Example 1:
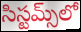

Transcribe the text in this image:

సిస్టమ్స్‌లో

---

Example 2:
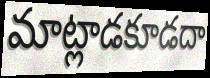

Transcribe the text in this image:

మాట్లాడకూడదా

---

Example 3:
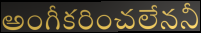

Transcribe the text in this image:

అంగీకరించలేననీ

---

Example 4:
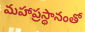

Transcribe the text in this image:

మహాప్రస్థానంతో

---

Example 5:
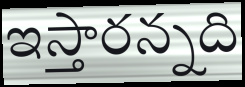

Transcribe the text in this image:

ఇస్తారన్నది